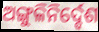
ଅଙ୍ଗୁଳିନିର୍ଦ୍ଦେଶ